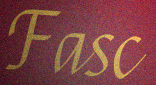
Fasc